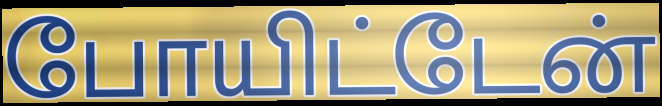
போயிட்டேன்